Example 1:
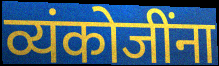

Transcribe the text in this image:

व्यंकोजींना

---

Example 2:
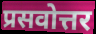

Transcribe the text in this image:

प्रसवोत्तर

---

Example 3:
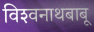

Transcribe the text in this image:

विश्‍वनाथबाबू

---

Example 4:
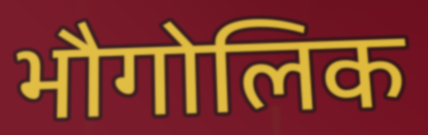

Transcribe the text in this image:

भौगोलिक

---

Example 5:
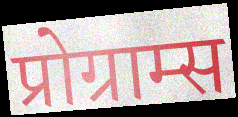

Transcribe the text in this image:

प्रोग्राम्स